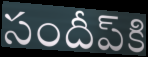
సందీప్‌కి